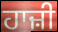
ਹਾਜ਼ੀ